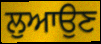
ਲੁਆਉਣ